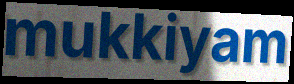
mukkiyam